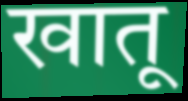
खातू